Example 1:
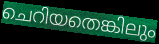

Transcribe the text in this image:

ചെറിയതെങ്കിലും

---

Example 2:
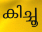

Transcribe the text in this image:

കിച്ചൂ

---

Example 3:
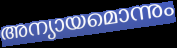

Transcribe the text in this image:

അന്യായമൊന്നും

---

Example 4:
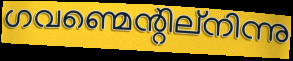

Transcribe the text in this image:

ഗവണ്മെന്റില്നിന്നു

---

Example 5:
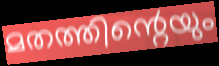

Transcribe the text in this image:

മതത്തിന്റെയും